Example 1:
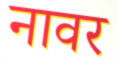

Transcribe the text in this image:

नावर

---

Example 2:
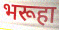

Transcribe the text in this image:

भरूहा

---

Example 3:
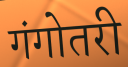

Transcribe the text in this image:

गंगोतरी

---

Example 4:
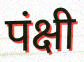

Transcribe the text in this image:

पंक्षी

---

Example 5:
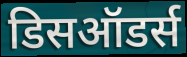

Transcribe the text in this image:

डिसऑडर्स